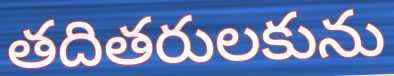
తదితరులకును